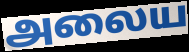
அலைய